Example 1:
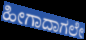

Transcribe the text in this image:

ಹೀಗಾದಾಗಲೇ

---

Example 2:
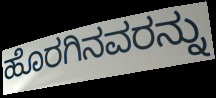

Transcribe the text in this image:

ಹೊರಗಿನವರನ್ನು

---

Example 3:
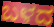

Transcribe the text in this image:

ಬಳದ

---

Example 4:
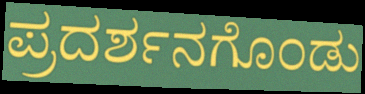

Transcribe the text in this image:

ಪ್ರದರ್ಶನಗೊಂಡು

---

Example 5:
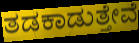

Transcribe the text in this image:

ತಡಕಾಡುತ್ತೇವೆ